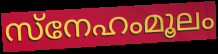
സ്നേഹംമൂലം